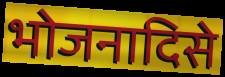
भोजनादिसे